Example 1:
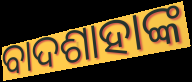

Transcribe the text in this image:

ବାଦଶାହାଙ୍କ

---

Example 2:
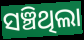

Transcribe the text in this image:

ସଞ୍ଚିଥିଲା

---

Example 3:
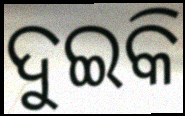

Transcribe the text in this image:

ଦୁଇକି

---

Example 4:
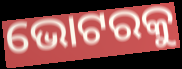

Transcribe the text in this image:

ଭୋଟରକୁ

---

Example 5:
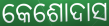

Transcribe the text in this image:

କେଶୋଦାସ